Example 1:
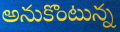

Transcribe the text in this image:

అనుకొంటున్న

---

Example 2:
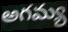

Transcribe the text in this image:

అగమ్య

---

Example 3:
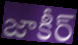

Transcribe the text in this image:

జాకీర్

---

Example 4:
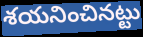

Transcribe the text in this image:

శయనించినట్టు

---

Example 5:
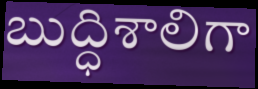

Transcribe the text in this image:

బుద్ధిశాలిగా